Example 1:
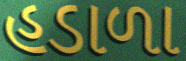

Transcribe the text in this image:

હડાળા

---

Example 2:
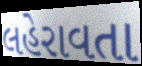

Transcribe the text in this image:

લહેરાવતા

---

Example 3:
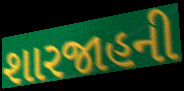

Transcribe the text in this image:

શારજાહની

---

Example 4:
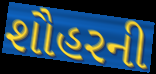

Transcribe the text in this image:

શૌહરની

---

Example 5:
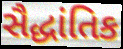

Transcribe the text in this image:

સૈદ્ધાંતિક